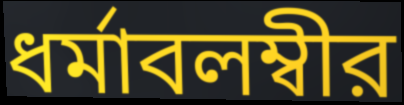
ধর্মাবলম্বীর